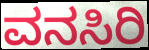
ವನಸಿರಿ